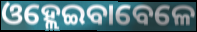
ଓହ୍ଲେଇବାବେଳେ